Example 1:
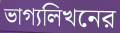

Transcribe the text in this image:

ভাগ্যলিখনের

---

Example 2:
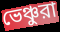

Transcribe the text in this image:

ভেঞ্চুরা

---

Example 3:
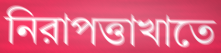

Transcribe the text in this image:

নিরাপত্তাখাতে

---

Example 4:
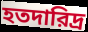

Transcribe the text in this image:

হতদারিদ্র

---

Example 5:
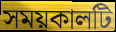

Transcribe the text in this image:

সময়কালটি